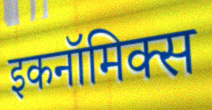
इकनॉमिक्स